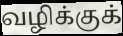
வழிக்குக்